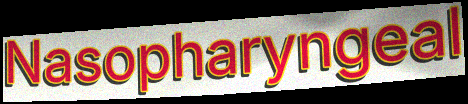
Nasopharyngeal